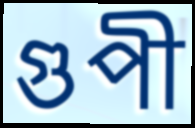
গুপী